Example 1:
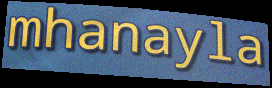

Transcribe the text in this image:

mhanayla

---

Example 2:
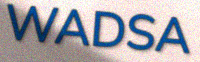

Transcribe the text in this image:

WADSA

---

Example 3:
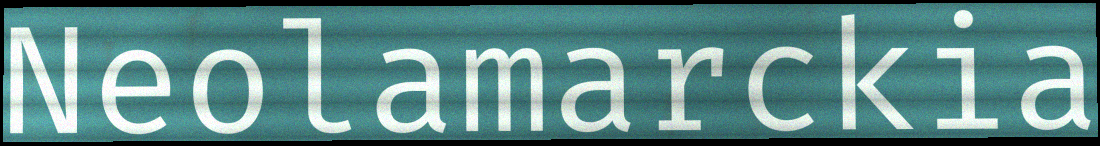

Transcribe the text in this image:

Neolamarckia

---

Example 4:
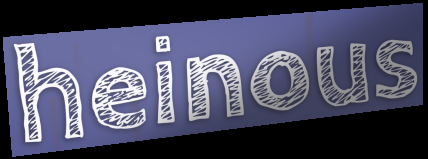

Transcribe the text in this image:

heinous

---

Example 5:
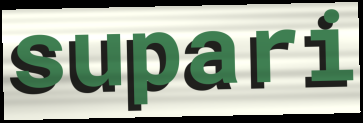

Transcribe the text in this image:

supari